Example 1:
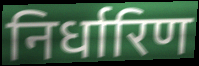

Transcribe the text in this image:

निर्धारिण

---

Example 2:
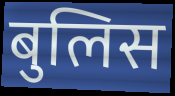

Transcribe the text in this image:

बुलिस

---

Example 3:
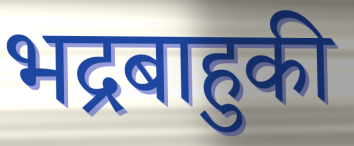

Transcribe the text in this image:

भद्रबाहुकी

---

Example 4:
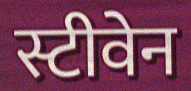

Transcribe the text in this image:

स्टीवेन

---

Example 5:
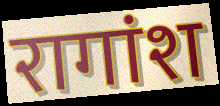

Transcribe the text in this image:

रागांश